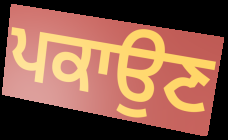
ਪਕਾਉਣ